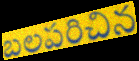
బలపరిచిన